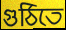
গুঠিতে